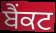
ਬੈਂਕਟ